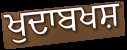
ਖੁਦਾਬਖਸ਼